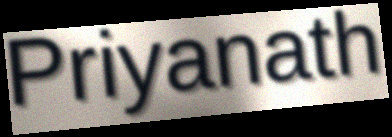
Priyanath